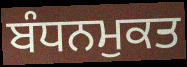
ਬੰਧਨਮੁਕਤ